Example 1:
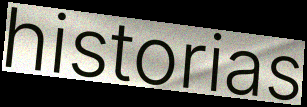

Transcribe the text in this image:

historias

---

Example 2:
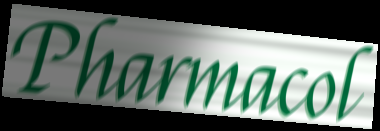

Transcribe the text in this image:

Pharmacol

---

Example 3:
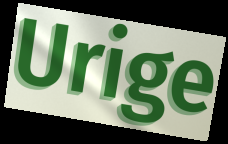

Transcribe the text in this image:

Urige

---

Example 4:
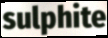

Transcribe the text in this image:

sulphite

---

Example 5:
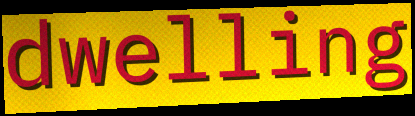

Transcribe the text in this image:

dwelling